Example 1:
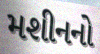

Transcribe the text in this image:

મશીનનો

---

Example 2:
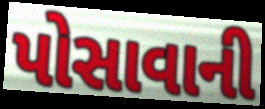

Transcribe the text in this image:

પોસાવાની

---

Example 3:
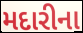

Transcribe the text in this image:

મદારીના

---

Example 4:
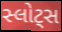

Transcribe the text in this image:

સ્લોટ્સ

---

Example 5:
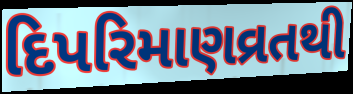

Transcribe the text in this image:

દિપરિમાણવ્રતથી